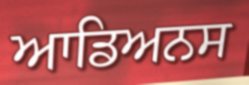
ਆਡਿਅਨਸ